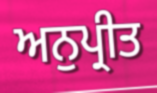
ਅਨੁਪ੍ਰੀਤ